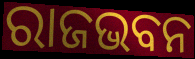
ରାଜଭବନ